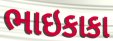
ભાઇકાકા